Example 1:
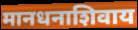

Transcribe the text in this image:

मानधनाशिवाय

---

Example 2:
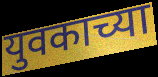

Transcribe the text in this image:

युवकाच्या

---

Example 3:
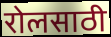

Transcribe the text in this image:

रोलसाठी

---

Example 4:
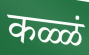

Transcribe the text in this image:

कळ्ळं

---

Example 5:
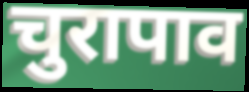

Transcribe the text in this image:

चुरापाव